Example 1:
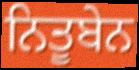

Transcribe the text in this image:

ਨਿਤੂਬੇਨ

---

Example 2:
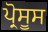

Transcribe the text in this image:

ਪ੍ਰੋਸੂਸ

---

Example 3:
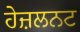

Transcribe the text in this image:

ਹੇਜ਼ਲਨਟ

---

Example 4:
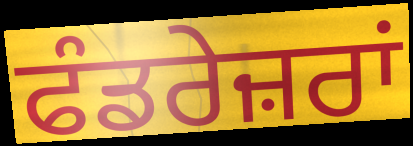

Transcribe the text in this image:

ਫੰਡਰੇਜ਼ਰਾਂ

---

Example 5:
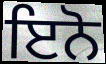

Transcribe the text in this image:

ਇਨੋ